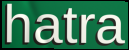
hatra